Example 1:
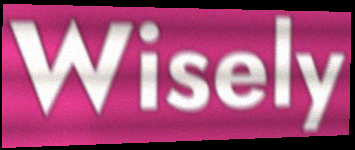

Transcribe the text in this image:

Wisely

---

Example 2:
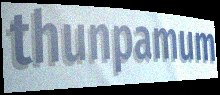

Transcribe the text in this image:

thunpamum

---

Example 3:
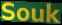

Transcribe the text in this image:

Souk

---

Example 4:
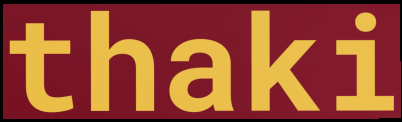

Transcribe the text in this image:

thaki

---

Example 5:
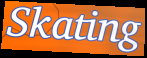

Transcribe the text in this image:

Skating